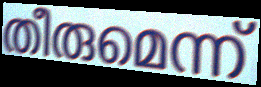
തീരുമെന്ന്